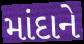
માંદાને